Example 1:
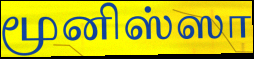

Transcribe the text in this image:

மூனிஸ்ஸா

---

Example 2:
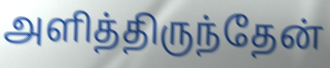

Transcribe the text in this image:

அளித்திருந்தேன்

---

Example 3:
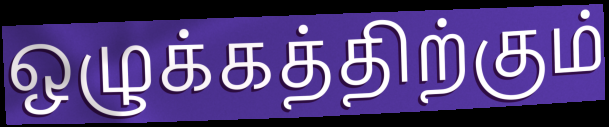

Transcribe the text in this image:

ஒழுக்கத்திற்கும்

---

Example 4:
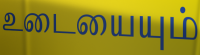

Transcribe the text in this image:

உடையையும்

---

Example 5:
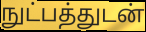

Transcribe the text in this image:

நுட்பத்துடன்